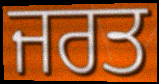
ਜਰਤ